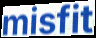
misfit